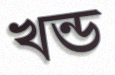
খন্ড